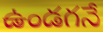
ఉండగనే